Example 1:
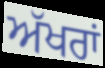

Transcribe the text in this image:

ਅੱਖਰਾਂ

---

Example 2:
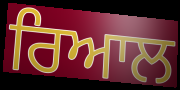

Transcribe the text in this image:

ਰਿਆਲ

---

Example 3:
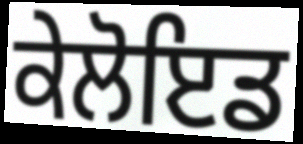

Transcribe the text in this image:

ਕੇਲੋਇਡ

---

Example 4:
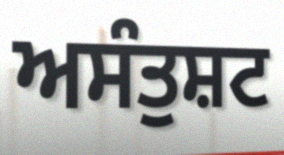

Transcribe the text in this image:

ਅਸੰਤੁਸ਼ਟ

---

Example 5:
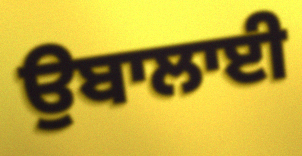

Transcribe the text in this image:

ਉਬਾਲਾਈ